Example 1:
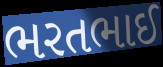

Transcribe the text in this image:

ભરતભાઈ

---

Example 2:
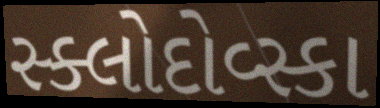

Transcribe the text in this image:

સ્ક્લોદોવ્સ્કા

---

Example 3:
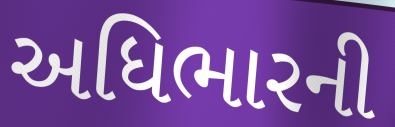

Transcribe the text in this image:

અધિભારની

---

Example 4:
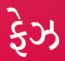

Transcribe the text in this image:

ફેઝ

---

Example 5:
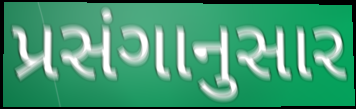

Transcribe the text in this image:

પ્રસંગાનુસાર